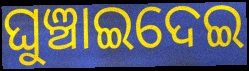
ଘୁଞ୍ଚାଇଦେଇ